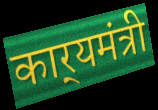
कार्यमंत्री